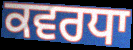
ਕਵਰਧਾ